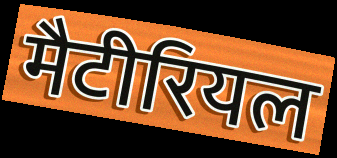
मैटीरियल